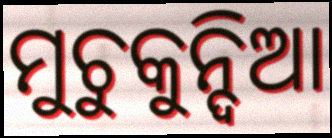
ମୁଚୁକୁନ୍ଦିଆ